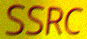
SSRC